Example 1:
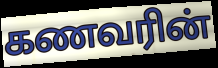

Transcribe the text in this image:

கணவரின்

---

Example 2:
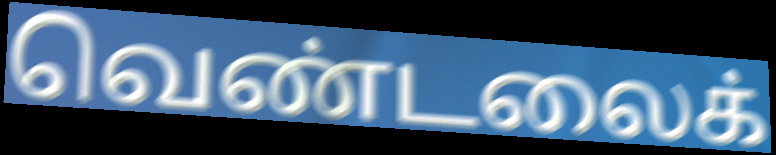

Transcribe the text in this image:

வெண்டலைக்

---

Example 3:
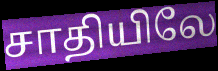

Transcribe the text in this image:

சாதியிலே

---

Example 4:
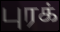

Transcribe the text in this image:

புரக்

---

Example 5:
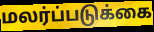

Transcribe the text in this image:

மலர்ப்படுக்கை